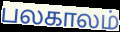
பலகாலம்